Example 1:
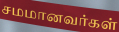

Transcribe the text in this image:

சமமானவர்கள்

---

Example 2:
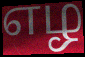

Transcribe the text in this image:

எழ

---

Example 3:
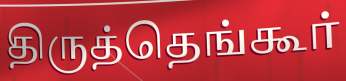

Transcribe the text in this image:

திருத்தெங்கூர்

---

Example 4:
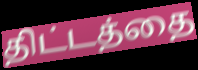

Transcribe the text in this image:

திட்டத்தை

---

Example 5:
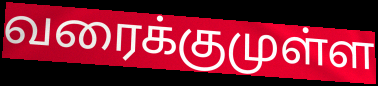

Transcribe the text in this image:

வரைக்குமுள்ள